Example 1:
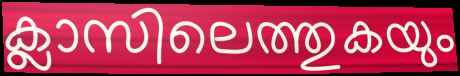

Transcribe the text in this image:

ക്ലാസിലെത്തുകയും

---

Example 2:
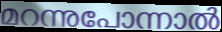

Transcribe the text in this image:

മറന്നുപോന്നാൽ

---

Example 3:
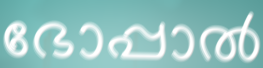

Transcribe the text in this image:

ഭോപ്പാൽ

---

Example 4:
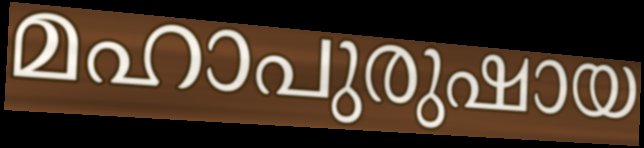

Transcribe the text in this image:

മഹാപുരുഷായ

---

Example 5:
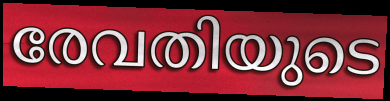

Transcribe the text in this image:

രേവതിയുടെ